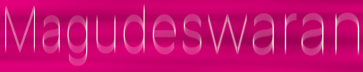
Magudeswaran